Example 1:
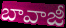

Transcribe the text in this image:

బావాజీ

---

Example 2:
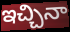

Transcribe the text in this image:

ఇచ్చినా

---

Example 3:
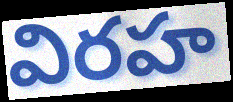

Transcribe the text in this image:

విరహ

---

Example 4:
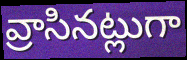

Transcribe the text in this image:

వ్రాసినట్లుగా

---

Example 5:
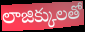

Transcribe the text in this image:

లాజిక్కులతో